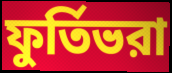
ফুর্তিভরা